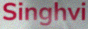
Singhvi